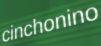
cinchonino